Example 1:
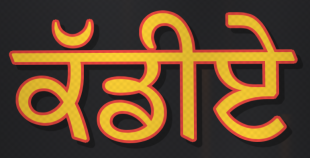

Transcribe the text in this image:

ਕੱਡੀਏ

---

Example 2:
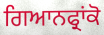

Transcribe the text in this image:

ਗਿਆਨਫ੍ਰਾਂਕੋ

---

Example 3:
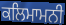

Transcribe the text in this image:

ਕਲਿਮਾਮਨੀ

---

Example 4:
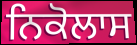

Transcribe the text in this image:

ਨਿਕੋਲਾਸ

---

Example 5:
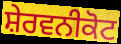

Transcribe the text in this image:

ਸ਼ੇਰਵਨੀਕੋਟ